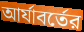
আর্যাবর্তের